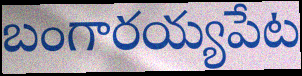
బంగారయ్యపేట